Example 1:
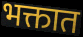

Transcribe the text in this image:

भक्तात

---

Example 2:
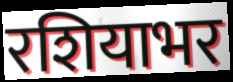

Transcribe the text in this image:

रशियाभर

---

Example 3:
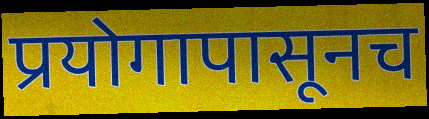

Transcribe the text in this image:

प्रयोगापासूनच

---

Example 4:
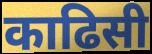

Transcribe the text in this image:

काढिसी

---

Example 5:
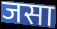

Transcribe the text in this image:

जसा